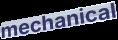
mechanical